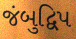
જંબુદ્વિપ